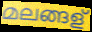
മലങ്ങള്